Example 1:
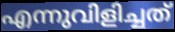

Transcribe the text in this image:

എന്നുവിളിച്ചത്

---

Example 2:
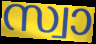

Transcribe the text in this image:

സ്വാ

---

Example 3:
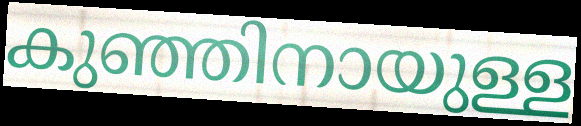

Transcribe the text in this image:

കുഞ്ഞിനായുള്ള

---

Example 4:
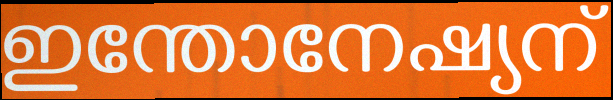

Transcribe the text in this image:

ഇന്തോനേഷ്യന്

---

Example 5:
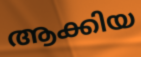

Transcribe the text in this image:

ആക്കിയ